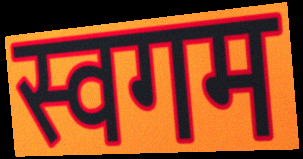
स्वगम